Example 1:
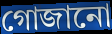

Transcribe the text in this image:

গোজানো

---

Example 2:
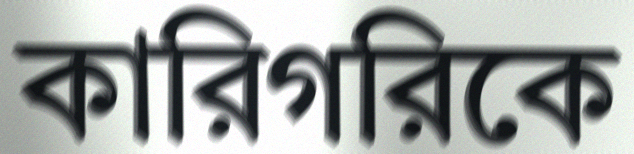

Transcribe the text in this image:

কারিগরিকে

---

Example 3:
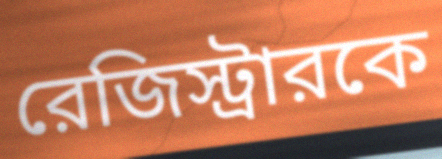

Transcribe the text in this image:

রেজিস্ট্রারকে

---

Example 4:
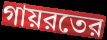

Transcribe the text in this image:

গায়রতের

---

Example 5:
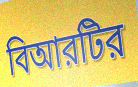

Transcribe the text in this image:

বিআরটির